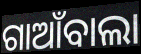
ଗାଆଁବାଲା